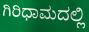
ಗಿರಿಧಾಮದಲ್ಲಿ